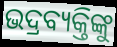
ଭଦ୍ରବ୍ୟକ୍ତିଙ୍କୁ